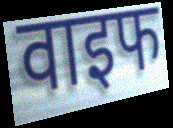
वाइफ